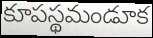
కూపస్థమండూక